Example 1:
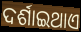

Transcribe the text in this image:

ଦର୍ଶାଇଥାଏ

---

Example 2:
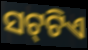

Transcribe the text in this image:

ସଟ୍‍ଟିଏ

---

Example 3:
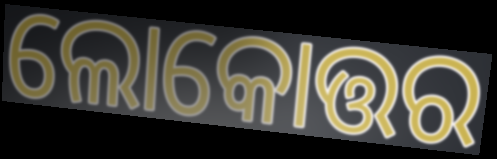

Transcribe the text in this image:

ଲୋକୋତ୍ତର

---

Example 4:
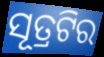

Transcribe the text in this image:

ସୂତ୍ରଟିର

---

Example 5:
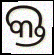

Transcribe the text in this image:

କ୍ତ